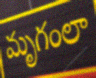
మృగంలా